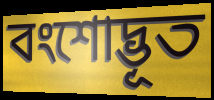
বংশোদ্ভূত